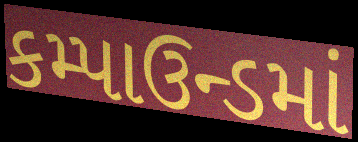
કમ્પાઉન્ડમાં